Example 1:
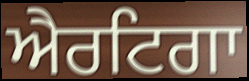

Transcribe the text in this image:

ਐਰਟਿਗਾ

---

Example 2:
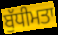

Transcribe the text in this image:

ਬੁੱਧੀਮਤਾ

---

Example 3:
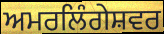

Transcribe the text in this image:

ਅਮਰਲਿੰਗੇਸ਼ਵਰ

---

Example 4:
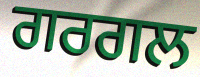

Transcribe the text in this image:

ਗਰਗਲ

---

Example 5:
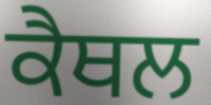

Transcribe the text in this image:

ਕੈਥਲ